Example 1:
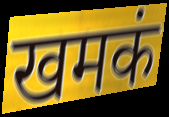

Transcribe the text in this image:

खमकं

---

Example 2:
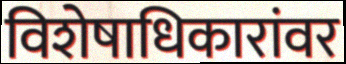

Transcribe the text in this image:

विशेषाधिकारांवर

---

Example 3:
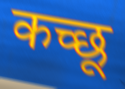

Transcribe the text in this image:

कच्छू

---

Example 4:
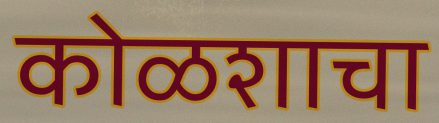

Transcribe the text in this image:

कोळशाचा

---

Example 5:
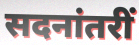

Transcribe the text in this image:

सदनांतरीं